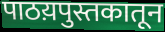
पाठय़पुस्तकातून